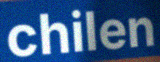
chilen